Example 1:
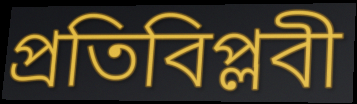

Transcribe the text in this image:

প্রতিবিপ্লবী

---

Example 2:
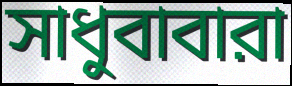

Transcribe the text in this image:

সাধুবাবারা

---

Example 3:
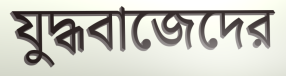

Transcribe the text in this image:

যুদ্ধবাজেদের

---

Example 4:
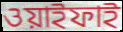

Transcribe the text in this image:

ওয়াইফাই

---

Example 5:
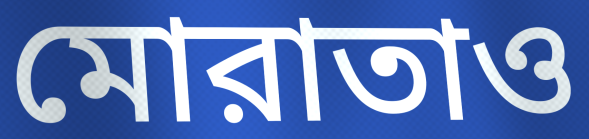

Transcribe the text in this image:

মোরাতাও